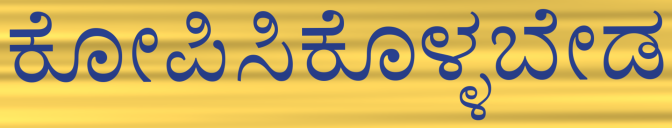
ಕೋಪಿಸಿಕೊಳ್ಳಬೇಡ